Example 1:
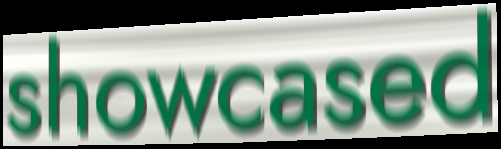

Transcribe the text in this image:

showcased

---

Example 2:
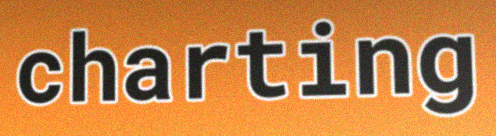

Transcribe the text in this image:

charting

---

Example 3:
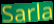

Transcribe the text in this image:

Sarla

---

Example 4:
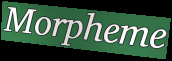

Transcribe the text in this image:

Morpheme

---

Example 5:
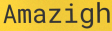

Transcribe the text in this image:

Amazigh